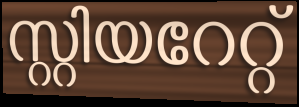
സ്റ്റിയറേറ്റ്